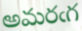
అమరఁగ